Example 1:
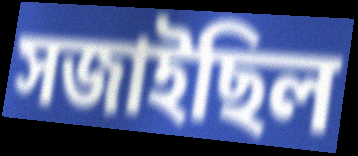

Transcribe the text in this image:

সজাইছিল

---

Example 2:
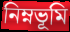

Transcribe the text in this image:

নিম্নভূমি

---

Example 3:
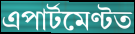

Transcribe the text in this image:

এপাৰ্টমেণ্টত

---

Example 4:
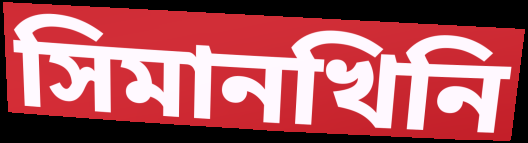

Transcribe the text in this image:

সিমানখিনি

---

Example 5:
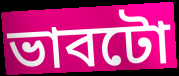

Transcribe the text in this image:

ভাবটো